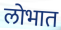
लोभात